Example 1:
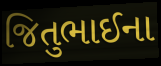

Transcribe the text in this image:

જિતુભાઈના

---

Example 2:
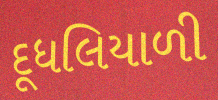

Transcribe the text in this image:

દૂધલિયાળી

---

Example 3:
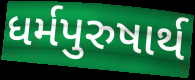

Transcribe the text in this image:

ધર્મપુરુષાર્થ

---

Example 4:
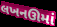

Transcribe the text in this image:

લખનઊમાં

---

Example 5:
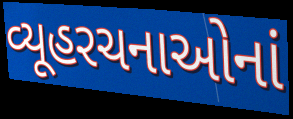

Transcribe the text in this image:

વ્યૂહરચનાઓનાં